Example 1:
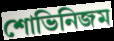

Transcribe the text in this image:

শোভিনিজম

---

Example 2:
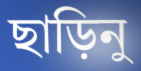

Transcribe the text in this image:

ছাড়িনু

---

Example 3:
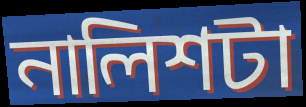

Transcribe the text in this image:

নালিশটা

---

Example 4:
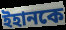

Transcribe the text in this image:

ইহানকে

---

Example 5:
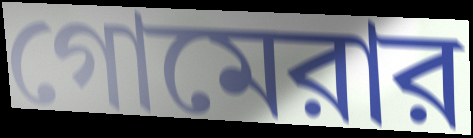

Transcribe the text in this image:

গোমেরার